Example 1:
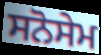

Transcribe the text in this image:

ਸਨੋਸੇਮ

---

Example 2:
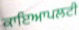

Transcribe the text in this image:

ਕਾਇਆਪਲਟੀ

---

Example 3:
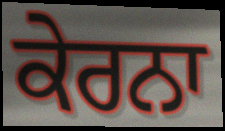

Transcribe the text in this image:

ਕੇਰਨਾ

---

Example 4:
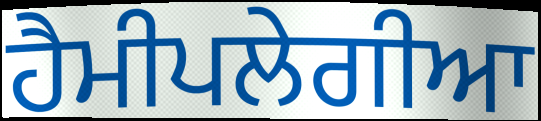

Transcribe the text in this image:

ਹੈਮੀਪਲੇਗੀਆ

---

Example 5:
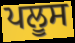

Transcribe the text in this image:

ਪਲੂਸ